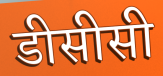
डीसीसी